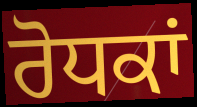
ਰੋਧਕਾਂ